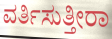
ವರ್ತಿಸುತ್ತೀರಾ